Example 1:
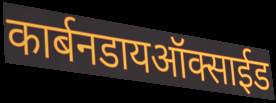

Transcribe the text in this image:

कार्बनडायऑक्साईड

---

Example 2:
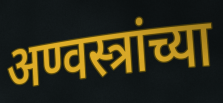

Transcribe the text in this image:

अण्वस्त्रांच्या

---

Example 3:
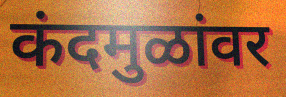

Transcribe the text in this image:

कंदमुळांवर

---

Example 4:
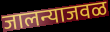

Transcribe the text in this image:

जालन्याजवळ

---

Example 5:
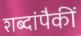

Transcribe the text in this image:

शब्दांपैकीं